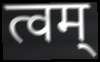
त्वम्